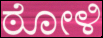
ಠೋಳಿ